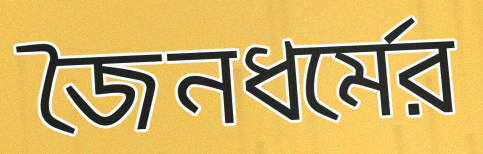
জৈনধর্মের